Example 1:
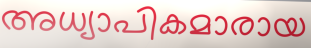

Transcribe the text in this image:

അധ്യാപികമാരായ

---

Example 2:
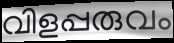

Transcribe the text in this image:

വിളപ്പരുവം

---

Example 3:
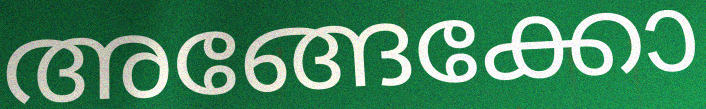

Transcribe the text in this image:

അങ്ങേക്കോ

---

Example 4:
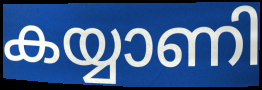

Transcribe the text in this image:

കയ്യാണി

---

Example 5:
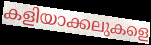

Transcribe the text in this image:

കളിയാക്കലുകളെ